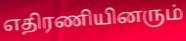
எதிரணியினரும்